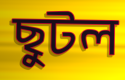
ছুটল